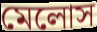
মেলোস